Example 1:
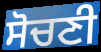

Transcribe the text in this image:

ਸੋਚਣੀ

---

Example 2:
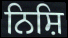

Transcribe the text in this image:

ਨਿਸ਼ਿ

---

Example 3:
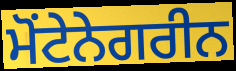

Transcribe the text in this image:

ਮੋਂਟੇਨੇਗਰੀਨ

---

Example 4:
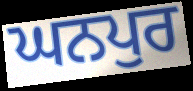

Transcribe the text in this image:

ਘਨਪੁਰ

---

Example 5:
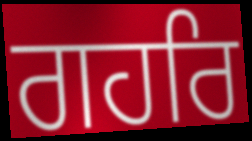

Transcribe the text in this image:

ਗਹਰਿ